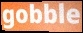
gobble